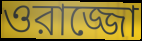
ওরাজ্জো